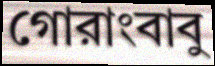
গোরাংবাবু